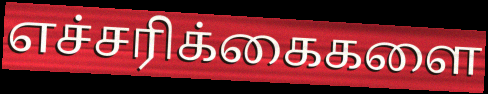
எச்சரிக்கைகளை